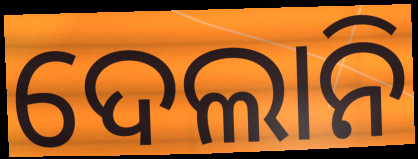
ଦେଲାନି